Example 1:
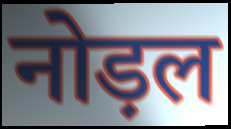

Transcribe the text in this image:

नोड़ल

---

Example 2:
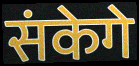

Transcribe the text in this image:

संकेगे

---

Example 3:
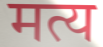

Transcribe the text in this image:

मत्य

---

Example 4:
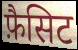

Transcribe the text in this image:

फ़ैसिट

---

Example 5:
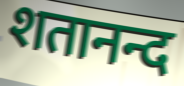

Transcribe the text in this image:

शतानन्द